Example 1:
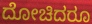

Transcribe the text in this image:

ದೋಚಿದರೂ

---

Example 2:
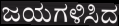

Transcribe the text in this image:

ಜಯಗಳಿಸಿದ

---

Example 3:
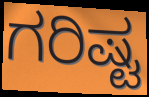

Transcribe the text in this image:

ಗರಿಷ್ಟ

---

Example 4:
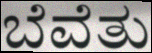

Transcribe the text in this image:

ಬೆವೆತು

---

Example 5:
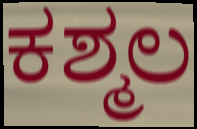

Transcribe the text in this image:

ಕಶ್ಮಲ